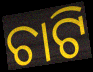
ଚାଟି